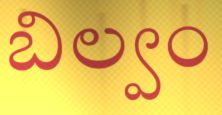
బిల్వం